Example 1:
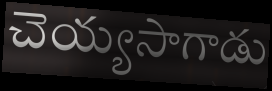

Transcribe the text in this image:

చెయ్యసాగాడు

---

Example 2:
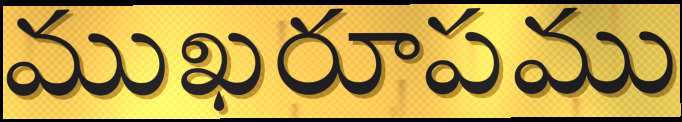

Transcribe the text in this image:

ముఖరూపము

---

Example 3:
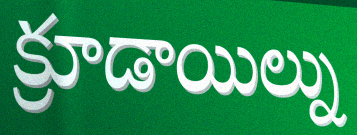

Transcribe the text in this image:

క్రూడాయిల్ను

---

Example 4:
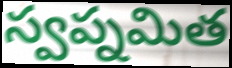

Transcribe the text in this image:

స్వప్నమిత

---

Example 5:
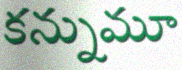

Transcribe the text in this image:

కన్నుమూ